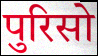
पुरिसो